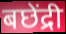
बछेंद्री